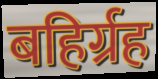
बहिर्ग्रह